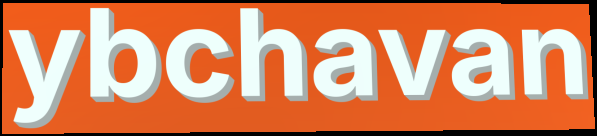
ybchavan